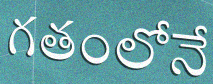
గతంలోనే